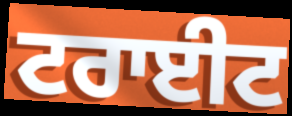
ਟਰਾਈਟ